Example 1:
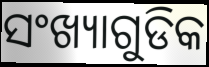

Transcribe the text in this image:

ସଂଖ୍ୟାଗୁଡିକ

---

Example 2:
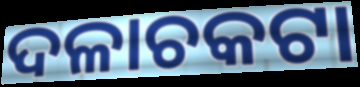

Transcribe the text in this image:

ଦଳାଚକଟା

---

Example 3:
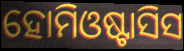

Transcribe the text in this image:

ହୋମିଓଷ୍ଟାସିସ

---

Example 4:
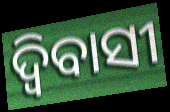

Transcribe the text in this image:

ଦ୍ବିବାସୀ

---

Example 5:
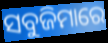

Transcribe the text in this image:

ସବୁଜିମାରେ